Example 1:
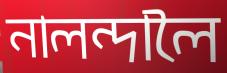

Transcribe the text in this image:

নালন্দালৈ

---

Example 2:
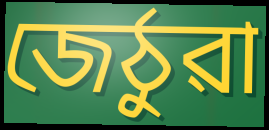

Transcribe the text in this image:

জেঠুৱা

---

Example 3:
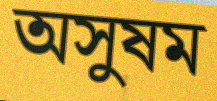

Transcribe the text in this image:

অসুষম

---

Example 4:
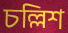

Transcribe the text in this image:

চল্লিশ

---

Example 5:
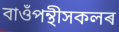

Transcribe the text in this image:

বাওঁপন্থীসকলৰ